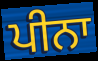
ਪੀਨਾ